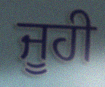
ਜੂਹੀ